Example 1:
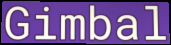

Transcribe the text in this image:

Gimbal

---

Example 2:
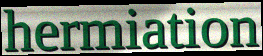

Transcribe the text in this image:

hermiation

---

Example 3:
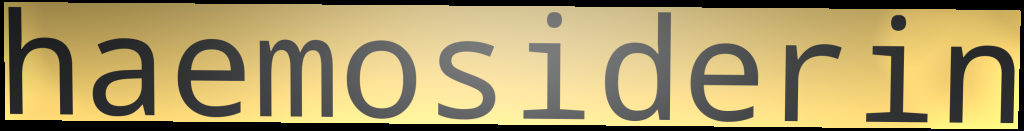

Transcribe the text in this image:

haemosiderin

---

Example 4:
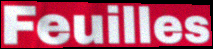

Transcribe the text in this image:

Feuilles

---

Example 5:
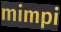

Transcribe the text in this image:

mimpi